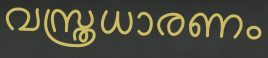
വസ്ത്രധാരണം